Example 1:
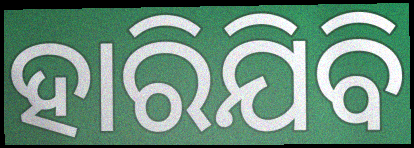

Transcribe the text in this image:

ହାରିଯିବି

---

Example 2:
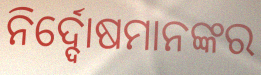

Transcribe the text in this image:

ନିର୍ଦ୍ଦୋଷମାନଙ୍କର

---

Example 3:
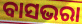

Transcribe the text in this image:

ବାସଭରା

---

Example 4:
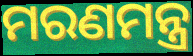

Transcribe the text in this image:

ମରଣମନ୍ତ୍ର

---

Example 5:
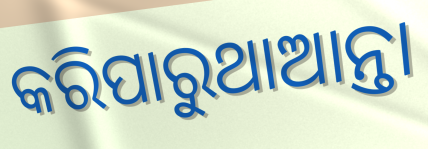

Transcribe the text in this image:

କରିପାରୁଥାଆନ୍ତା